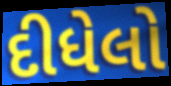
દીધેલો